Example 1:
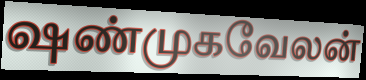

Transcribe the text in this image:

ஷண்முகவேலன்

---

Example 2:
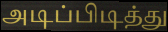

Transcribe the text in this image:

அடிப்பிடித்து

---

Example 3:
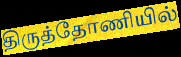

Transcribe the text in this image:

திருத்தோணியில்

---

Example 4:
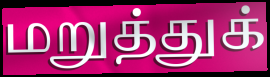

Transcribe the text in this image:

மறுத்துக்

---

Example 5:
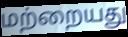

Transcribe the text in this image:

மற்றையது